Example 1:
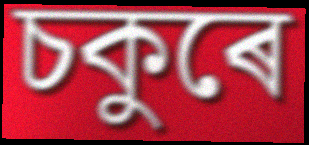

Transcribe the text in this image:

চকুৰে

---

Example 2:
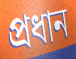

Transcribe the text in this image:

প্ৰধান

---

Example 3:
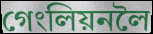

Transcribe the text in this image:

গেংলিয়নলৈ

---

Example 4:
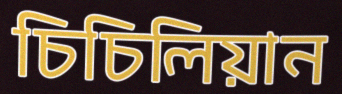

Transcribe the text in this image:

চিচিলিয়ান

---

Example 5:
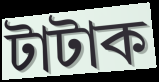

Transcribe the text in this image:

টাটাক